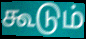
கூடும்